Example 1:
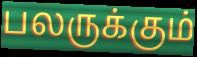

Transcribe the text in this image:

பலருக்கும்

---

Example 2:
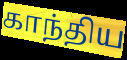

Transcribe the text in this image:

காந்திய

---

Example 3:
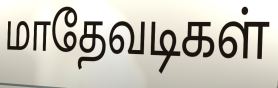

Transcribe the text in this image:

மாதேவடிகள்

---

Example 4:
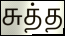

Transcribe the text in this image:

சுத்த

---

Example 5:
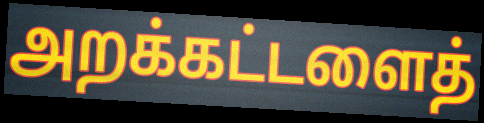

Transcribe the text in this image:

அறக்கட்டளைத்